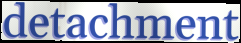
detachment